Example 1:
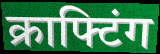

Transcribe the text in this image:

क्राफ्टिंग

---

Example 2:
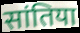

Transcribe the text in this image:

सांतिया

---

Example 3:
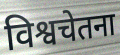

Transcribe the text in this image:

विश्वचेतना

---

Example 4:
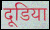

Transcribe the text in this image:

दूडिया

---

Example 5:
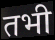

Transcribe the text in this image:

तभी